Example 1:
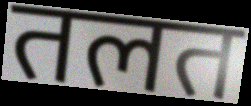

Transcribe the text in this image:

तलत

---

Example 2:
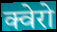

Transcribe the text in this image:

क्वेरो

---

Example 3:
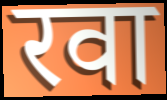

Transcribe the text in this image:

रवा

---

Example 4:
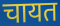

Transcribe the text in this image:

चायत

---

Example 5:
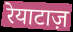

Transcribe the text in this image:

रेयाटाज़